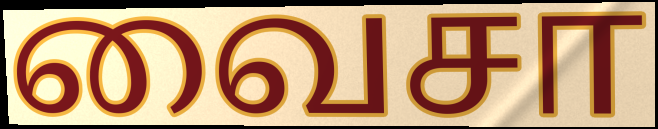
வைசா